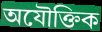
অযৌক্তিক